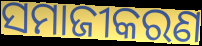
ସମାଜୀକରଣ